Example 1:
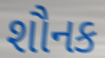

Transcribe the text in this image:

શૌનક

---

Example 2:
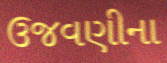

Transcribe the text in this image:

ઉજવણીના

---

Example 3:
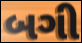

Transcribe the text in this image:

બગી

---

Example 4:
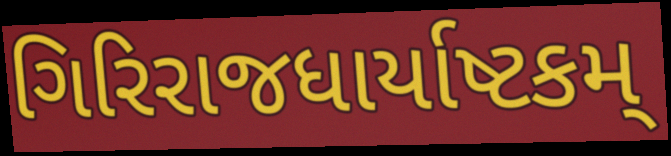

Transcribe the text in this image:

ગિરિરાજધાર્યાષ્ટકમ્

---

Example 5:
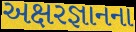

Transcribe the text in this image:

અક્ષરજ્ઞાનના